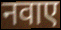
नवाए